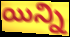
యిన్ని